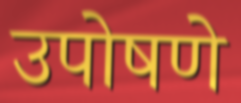
उपोषणे